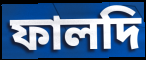
ফালদি